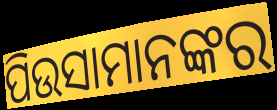
ପିଉସାମାନଙ୍କର